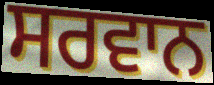
ਸਰਵਾਨ